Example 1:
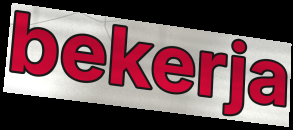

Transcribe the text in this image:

bekerja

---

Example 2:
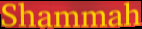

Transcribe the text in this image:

Shammah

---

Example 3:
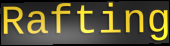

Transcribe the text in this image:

Rafting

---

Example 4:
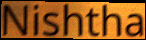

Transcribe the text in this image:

Nishtha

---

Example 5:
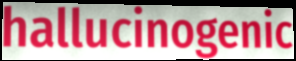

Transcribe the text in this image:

hallucinogenic